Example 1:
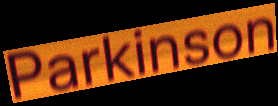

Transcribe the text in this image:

Parkinson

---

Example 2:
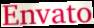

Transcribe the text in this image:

Envato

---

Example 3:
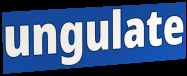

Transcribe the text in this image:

ungulate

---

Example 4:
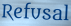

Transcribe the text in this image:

Refusal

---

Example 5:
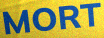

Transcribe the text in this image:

MORT